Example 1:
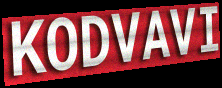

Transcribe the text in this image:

KODVAVI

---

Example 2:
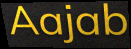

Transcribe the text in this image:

Aajab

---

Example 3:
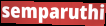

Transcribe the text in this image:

semparuthi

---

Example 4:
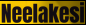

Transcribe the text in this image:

Neelakesi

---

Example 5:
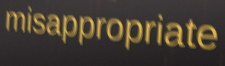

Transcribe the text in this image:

misappropriate